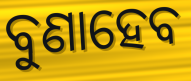
ବୁଣାହେବ